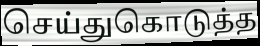
செய்துகொடுத்த